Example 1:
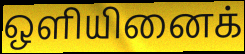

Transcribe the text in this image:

ஒளியினைக்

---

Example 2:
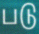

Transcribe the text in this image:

படு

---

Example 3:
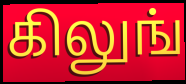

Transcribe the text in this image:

கிலுங்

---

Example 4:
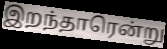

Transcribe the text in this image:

இறந்தாரென்று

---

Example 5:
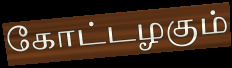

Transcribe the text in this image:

கோட்டழகும்